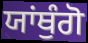
ਯਾਂਥੁੰਗੋ